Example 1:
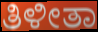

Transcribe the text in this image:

ತಿಳೀತಾ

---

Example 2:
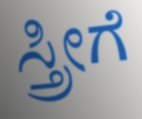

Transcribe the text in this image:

ಸ್ತ್ರೀಗೆ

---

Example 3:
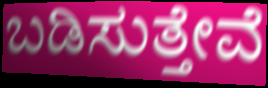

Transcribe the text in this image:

ಬಡಿಸುತ್ತೇವೆ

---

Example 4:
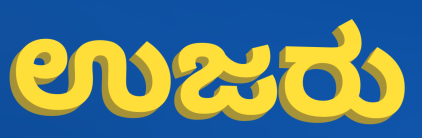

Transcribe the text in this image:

ಉಜರು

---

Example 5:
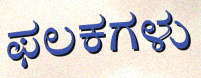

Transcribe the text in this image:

ಫಲಕಗಳು